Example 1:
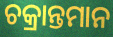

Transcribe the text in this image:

ଚକ୍ରାନ୍ତମାନ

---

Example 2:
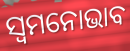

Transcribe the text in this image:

ସ୍ୱମନୋଭାବ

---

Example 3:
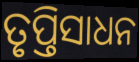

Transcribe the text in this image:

ତୃପ୍ତିସାଧନ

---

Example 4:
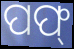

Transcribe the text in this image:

ପଫ୍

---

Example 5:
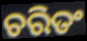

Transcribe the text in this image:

ଚରିତଂ